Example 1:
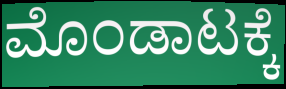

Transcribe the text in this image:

ಮೊಂಡಾಟಕ್ಕೆ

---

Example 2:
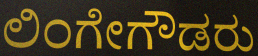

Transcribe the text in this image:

ಲಿಂಗೇಗೌಡರು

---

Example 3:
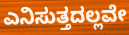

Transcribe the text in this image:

ಎನಿಸುತ್ತದಲ್ಲವೇ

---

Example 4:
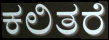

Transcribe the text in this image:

ಕಲಿತರೆ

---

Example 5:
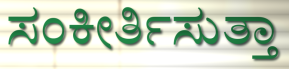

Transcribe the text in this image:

ಸಂಕೀರ್ತಿಸುತ್ತಾ